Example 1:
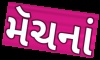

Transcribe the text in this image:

મૅચનાં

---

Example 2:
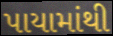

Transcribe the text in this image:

પાયામાંથી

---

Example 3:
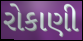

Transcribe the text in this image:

રોકાણી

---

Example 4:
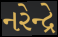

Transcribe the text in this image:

નરેન્દ્રે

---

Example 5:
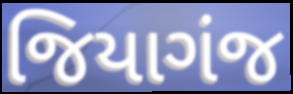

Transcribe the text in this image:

જિયાગંજ